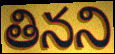
తినని